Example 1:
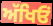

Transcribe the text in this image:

ਅੱਖਿਓਂ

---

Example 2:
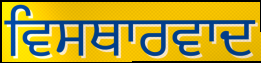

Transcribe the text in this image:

ਵਿਸਥਾਰਵਾਦ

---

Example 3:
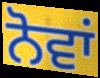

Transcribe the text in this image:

ਨੋਵਾਂ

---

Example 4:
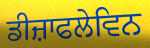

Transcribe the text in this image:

ਡੀਜ਼ਾਫਲੇਵਿਨ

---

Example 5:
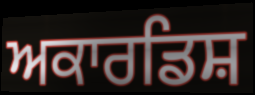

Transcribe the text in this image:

ਅਕਾਰਡਿਸ਼